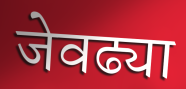
जेवढ्या